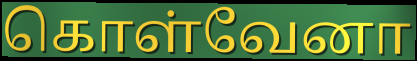
கொள்வேனா